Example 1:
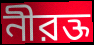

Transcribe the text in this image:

নীরক্ত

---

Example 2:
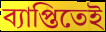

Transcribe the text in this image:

ব্যাপ্তিতেই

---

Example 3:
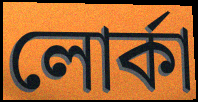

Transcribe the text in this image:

লোর্কা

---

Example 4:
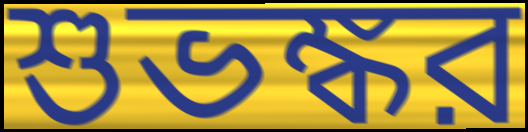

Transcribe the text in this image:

শুভঙ্কর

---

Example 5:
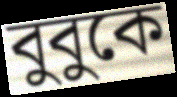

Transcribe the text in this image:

বুবুকে